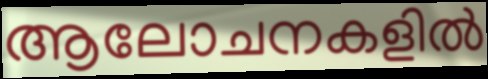
ആലോചനകളിൽ